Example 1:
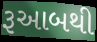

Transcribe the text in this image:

રૂઆબથી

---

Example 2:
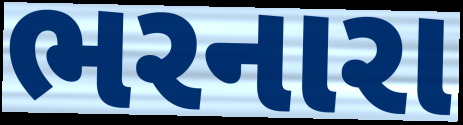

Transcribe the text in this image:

ભરનારા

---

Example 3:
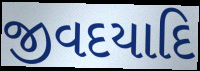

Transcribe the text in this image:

જીવદયાદિ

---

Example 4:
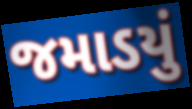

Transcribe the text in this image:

જમાડયું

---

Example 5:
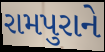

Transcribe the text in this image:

રામપુરાને